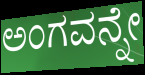
ಅಂಗವನ್ನೇ